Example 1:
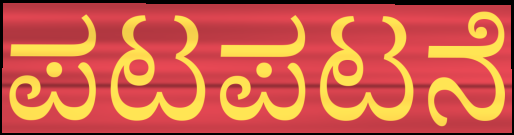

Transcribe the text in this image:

ಪಟಪಟನೆ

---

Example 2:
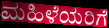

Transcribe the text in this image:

ಮಹಿಳೆಯರಿಗೆ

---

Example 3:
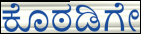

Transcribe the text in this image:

ಕೊಠಡಿಗೇ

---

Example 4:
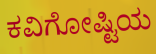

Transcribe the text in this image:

ಕವಿಗೋಷ್ಟಿಯ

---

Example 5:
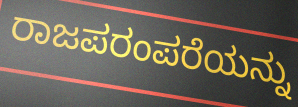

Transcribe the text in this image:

ರಾಜಪರಂಪರೆಯನ್ನು